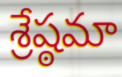
శ్రేష్ఠమా